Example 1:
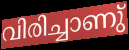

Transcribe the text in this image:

വിരിച്ചാണു്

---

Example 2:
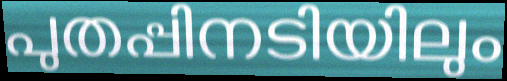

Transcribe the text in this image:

പുതപ്പിനടിയിലും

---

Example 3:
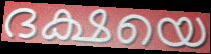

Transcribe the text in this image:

ദക്ഷയെ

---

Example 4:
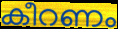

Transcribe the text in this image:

കീറണം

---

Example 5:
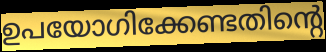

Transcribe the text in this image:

ഉപയോഗിക്കേണ്ടതിന്റെ